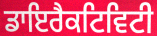
ਡਾਇਰੈਕਟਿਵਿਟੀ